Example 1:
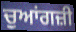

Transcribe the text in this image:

ਚੁਆਂਗਜ਼ੀ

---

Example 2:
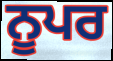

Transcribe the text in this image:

ਨੂਪਰ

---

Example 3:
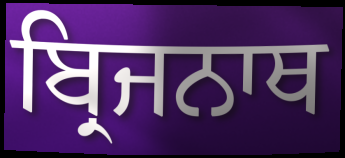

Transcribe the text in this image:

ਬ੍ਰਿਜਨਾਥ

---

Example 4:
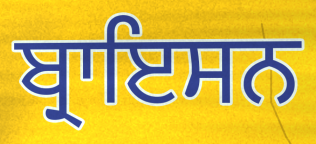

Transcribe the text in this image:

ਬ੍ਰਾਇਸਨ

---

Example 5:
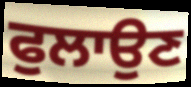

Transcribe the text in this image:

ਫੁਲਾਉਣ